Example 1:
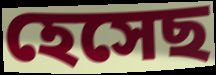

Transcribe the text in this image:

হেসেছ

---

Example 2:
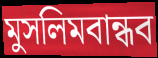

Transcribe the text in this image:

মুসলিমবান্ধব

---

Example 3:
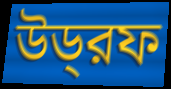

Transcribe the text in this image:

উড্‌রফ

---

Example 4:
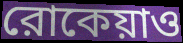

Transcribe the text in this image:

রোকেয়াও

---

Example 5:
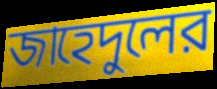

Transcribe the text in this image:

জাহেদুলের